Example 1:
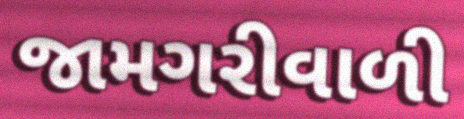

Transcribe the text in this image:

જામગરીવાળી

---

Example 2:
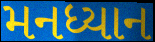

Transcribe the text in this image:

મનધ્યાન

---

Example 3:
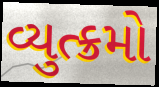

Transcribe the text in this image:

વ્યુત્ક્રમો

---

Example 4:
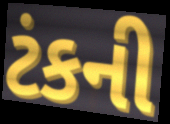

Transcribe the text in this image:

ટંકની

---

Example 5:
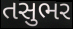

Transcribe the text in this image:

તસુભર